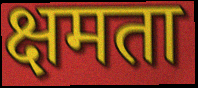
क्षमता